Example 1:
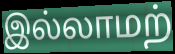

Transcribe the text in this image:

இல்லாமற்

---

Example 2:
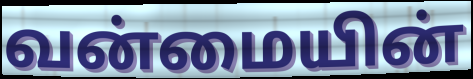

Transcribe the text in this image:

வன்மையின்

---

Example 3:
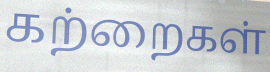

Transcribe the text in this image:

கற்றைகள்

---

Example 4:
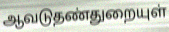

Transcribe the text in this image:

ஆவடுதண்துறையுள்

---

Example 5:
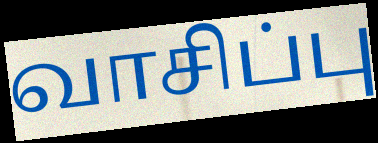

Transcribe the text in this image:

வாசிப்பு